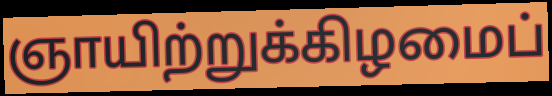
ஞாயிற்றுக்கிழமைப்